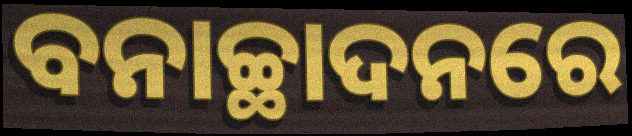
ବନାଚ୍ଛାଦନରେ